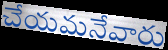
చేయమనేవారు